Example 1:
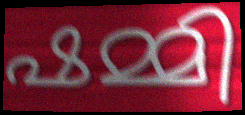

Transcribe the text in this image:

ഷമ്മി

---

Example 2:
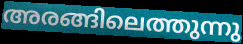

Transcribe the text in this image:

അരങ്ങിലെത്തുന്നു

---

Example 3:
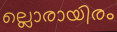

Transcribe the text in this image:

ല്ലൊരായിരം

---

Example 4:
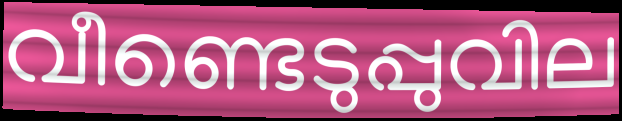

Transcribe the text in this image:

വീണ്ടെടുപ്പുവില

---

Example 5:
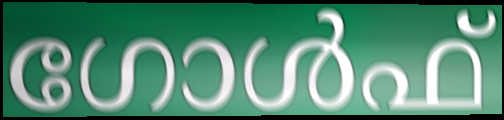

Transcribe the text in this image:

ഗോൾഫ്